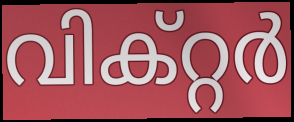
വിക്റ്റർ